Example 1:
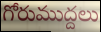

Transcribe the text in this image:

గోరుముద్దలు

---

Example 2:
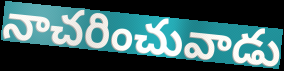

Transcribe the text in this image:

నాచరించువాడు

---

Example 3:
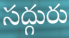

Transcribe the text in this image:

సద్గురు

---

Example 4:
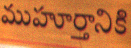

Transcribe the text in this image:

ముహూర్తానికి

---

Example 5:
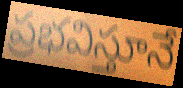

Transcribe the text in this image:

ప్రభవిస్తూనే